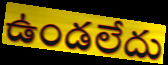
ఉండలేదు